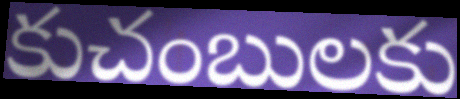
కుచంబులకు